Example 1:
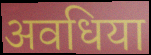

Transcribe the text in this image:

अवधिया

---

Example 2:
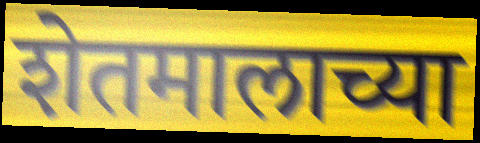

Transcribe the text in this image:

शेतमालाच्या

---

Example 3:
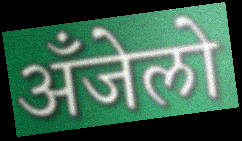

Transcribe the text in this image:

अँजेलो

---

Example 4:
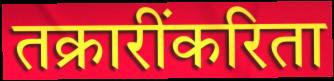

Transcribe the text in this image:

तक्रारींकरिता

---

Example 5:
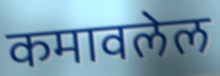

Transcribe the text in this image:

कमावलेल